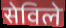
सेविले